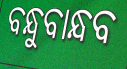
ବନ୍ଧୁବାନ୍ଧବ